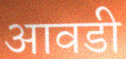
आवडी